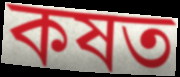
কষত